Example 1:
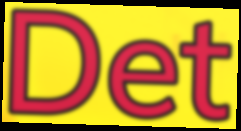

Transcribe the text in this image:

Det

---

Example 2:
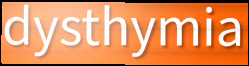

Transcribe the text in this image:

dysthymia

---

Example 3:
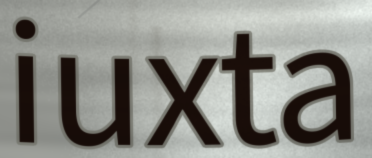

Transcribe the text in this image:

iuxta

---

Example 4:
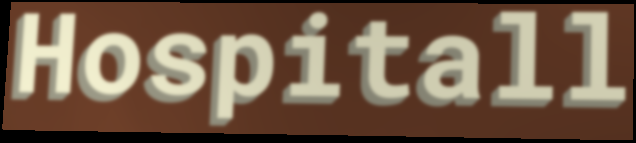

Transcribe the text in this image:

Hospitall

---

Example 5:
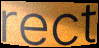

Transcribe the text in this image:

rect